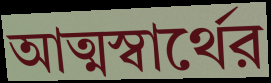
আত্মস্বার্থের